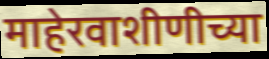
माहेरवाशीणीच्या